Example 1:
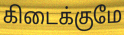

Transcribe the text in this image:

கிடைக்குமே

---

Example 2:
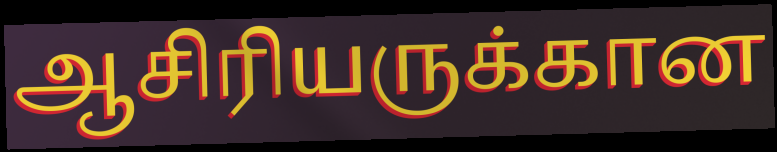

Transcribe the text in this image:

ஆசிரியருக்கான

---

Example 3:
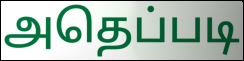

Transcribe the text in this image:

அதெப்படி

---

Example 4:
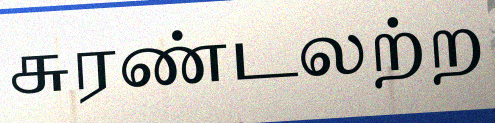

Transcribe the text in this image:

சுரண்டலற்ற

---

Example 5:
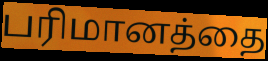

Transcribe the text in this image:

பரிமானத்தை